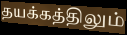
தயக்கத்திலும்